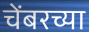
चेंबरच्या